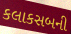
કલાકસબની